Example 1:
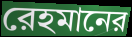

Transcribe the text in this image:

রেহমানের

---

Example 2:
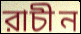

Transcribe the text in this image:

রাচীন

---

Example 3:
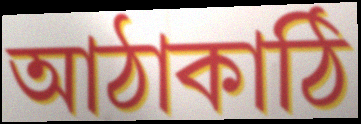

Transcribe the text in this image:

আঠাকাঠি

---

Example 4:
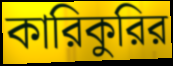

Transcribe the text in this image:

কারিকুরির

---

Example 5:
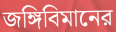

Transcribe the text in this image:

জঙ্গিবিমানের